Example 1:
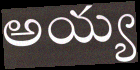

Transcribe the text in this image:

అయ్య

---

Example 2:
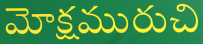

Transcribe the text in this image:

మోక్షమురుచి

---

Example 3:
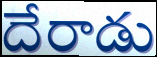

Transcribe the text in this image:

దేరాడు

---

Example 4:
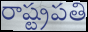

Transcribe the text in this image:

రాష్ట్రపతి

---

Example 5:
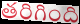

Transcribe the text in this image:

తరిగింది